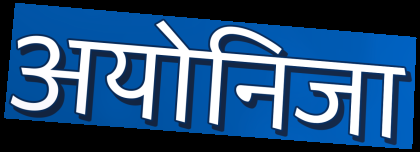
अयोनिजा